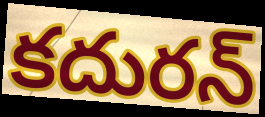
కదురన్